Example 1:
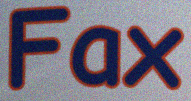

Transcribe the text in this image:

Fax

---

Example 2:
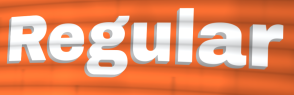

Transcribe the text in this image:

Regular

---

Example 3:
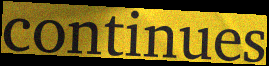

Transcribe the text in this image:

continues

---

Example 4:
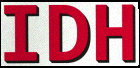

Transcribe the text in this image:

IDH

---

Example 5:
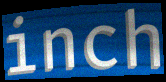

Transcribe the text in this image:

inch